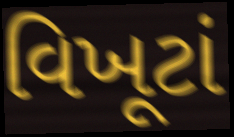
વિખૂટાં